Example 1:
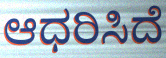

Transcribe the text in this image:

ಆಧರಿಸಿದೆ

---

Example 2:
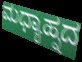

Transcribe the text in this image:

ಮಧ್ಯಾಹ್ನದ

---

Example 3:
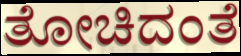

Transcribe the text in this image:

ತೋಚಿದಂತೆ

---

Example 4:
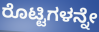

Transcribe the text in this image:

ರೊಟ್ಟಿಗಳನ್ನೇ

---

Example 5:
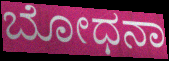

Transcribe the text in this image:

ಬೋಧನಾ